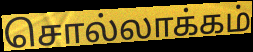
சொல்லாக்கம்